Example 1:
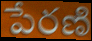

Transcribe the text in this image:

పేరణి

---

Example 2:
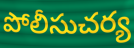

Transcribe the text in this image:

పోలీసుచర్య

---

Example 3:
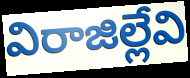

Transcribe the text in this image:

విరాజిల్లేవి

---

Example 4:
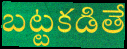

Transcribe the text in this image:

బట్టకడితే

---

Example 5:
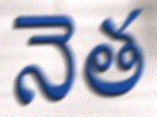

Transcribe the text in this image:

నెత